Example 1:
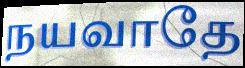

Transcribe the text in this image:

நயவாதே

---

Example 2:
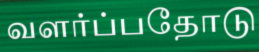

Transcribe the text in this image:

வளர்ப்பதோடு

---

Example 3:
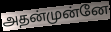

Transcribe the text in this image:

அதன்முன்னே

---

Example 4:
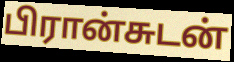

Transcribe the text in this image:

பிரான்சுடன்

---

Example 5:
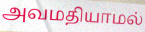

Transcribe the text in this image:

அவமதியாமல்